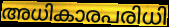
അധികാരപരിധി